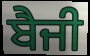
ਬੈਜੀ